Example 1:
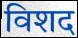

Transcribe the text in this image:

विशद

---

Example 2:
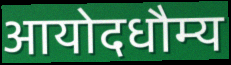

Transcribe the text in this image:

आयोदधौम्य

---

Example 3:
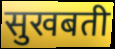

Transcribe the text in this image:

सुखबती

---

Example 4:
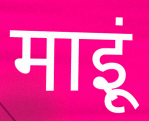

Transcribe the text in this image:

माइूं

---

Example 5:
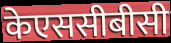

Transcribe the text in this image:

केएससीबीसी